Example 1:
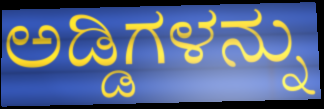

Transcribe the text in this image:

ಅಡ್ಡಿಗಳನ್ನು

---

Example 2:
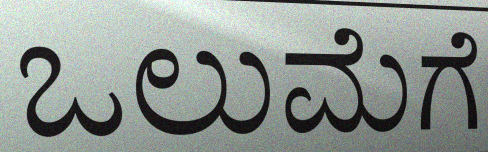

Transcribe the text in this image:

ಒಲುಮೆಗೆ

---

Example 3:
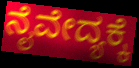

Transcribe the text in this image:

ನೈವೇದ್ಯಕ್ಕೆ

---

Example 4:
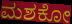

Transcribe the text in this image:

ಮಶಕೋ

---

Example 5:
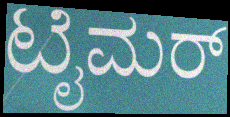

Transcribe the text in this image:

ಟೈಮರ್